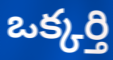
ఒక్కర్తి